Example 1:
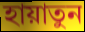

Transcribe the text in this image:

হায়াতুন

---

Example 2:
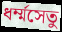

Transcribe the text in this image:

ধর্ম্মসেতু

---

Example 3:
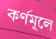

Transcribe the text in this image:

কর্ণমূলে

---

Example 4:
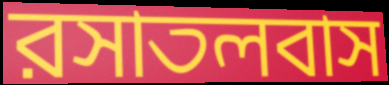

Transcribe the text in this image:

রসাতলবাস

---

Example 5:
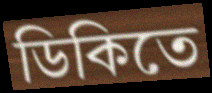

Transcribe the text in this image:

ডিকিতে